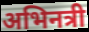
अभिनत्री